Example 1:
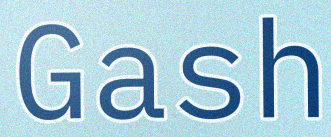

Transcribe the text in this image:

Gash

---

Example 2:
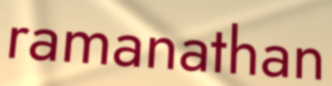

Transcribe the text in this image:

ramanathan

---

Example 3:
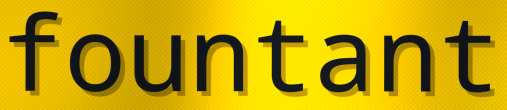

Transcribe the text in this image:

fountant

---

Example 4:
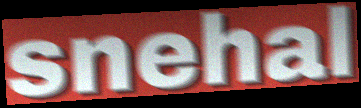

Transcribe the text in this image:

snehal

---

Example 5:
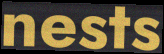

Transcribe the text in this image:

nests